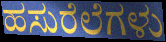
ಹಸುರೆಲೆಗಳು